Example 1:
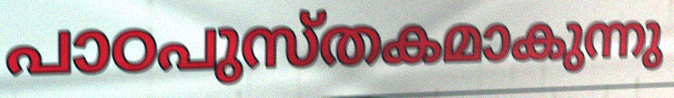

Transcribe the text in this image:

പാഠപുസ്തകമാകുന്നു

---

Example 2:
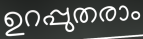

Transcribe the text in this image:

ഉറപ്പുതരാം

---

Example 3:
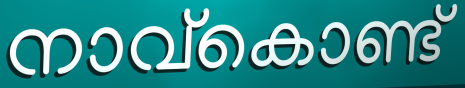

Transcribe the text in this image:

നാവ്കൊണ്ട്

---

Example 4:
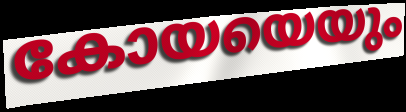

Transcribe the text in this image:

കോയയെയും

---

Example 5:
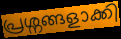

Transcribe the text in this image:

പ്രശ്നങ്ങളാക്കി